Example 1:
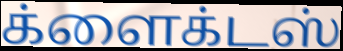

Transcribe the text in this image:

க்ளைக்டஸ்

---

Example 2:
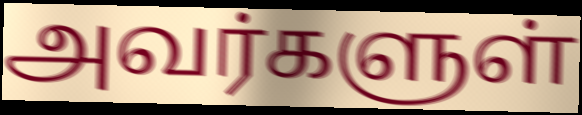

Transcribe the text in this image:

அவர்களுள்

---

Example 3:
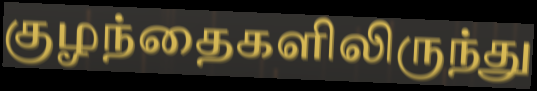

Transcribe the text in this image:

குழந்தைகளிலிருந்து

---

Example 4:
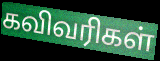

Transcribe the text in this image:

கவிவரிகள்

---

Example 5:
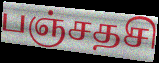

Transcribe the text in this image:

பஞ்சதசி